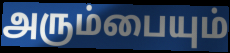
அரும்பையும்